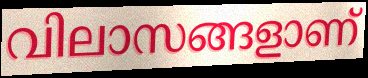
വിലാസങ്ങളാണ്